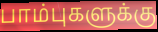
பாம்புகளுக்கு